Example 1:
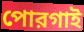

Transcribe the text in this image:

পোরগাই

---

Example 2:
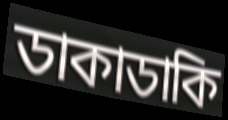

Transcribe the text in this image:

ডাকাডাকি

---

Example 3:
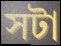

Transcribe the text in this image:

সটা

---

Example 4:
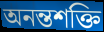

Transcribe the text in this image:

অনন্তশক্তি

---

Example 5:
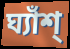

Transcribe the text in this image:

ঘ্যাঁশ্